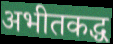
अभीतकद्ध